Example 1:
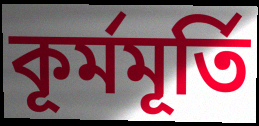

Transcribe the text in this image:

কূর্মমূর্তি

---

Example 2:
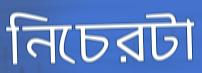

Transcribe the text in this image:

নিচেরটা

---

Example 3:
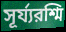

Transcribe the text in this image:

সূর্য্যরশ্মি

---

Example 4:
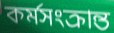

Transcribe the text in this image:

কর্মসংক্রান্ত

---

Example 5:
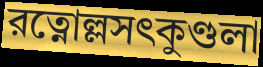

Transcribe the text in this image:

রত্নোল্লসৎকুণ্ডলা